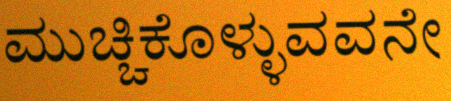
ಮುಚ್ಚಿಕೊಳ್ಳುವವನೇ